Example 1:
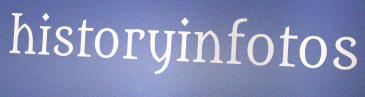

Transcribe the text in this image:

historyinfotos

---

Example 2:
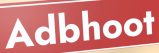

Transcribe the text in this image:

Adbhoot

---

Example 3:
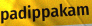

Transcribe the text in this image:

padippakam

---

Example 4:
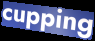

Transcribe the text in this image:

cupping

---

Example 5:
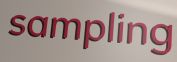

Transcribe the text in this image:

sampling